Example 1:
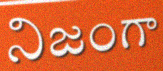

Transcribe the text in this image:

నిజంగా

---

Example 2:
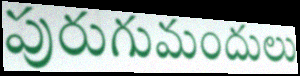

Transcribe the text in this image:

పురుగుమందులు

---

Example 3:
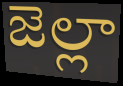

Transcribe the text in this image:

జెల్లా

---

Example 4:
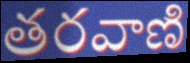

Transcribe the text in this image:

తరవాణి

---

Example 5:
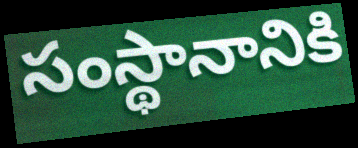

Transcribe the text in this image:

సంస్థానానికి